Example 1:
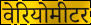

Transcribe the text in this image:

वेरियोमीटर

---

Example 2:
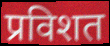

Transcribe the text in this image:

प्रविशत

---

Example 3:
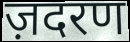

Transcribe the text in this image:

ज़दरण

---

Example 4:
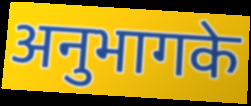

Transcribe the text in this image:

अनुभागके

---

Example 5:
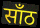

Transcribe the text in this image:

साँठ